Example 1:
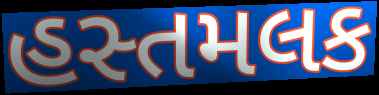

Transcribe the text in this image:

હસ્તમલક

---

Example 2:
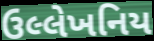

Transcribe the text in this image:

ઉલ્લેખનિય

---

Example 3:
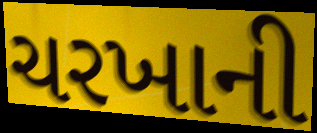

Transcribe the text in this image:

ચરખાની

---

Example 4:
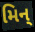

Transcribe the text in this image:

મિન્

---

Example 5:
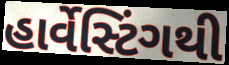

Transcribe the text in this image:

હાર્વેસ્ટિંગથી